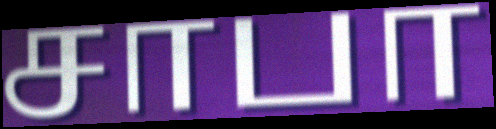
சாபா